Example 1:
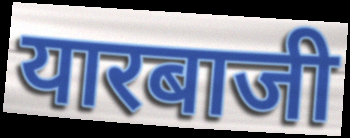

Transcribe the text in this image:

यारबाजी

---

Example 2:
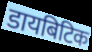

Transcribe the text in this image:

डायबिटिक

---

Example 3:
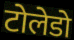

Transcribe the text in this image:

टोलेडो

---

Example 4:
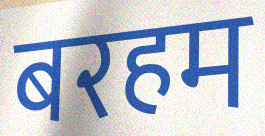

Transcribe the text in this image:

बरहम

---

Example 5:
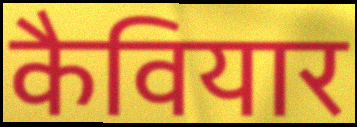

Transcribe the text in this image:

कैवियार